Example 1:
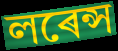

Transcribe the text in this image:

লৰেন্স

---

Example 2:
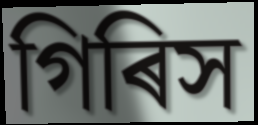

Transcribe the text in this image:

গিৰিস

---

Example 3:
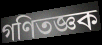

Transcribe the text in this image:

গণিতজ্ঞক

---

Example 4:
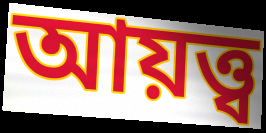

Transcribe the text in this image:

আয়ত্ত্ব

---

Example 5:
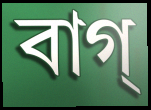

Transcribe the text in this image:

বাগ্